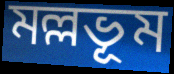
মল্লভূম